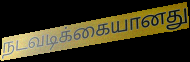
நடவடிக்கையானது